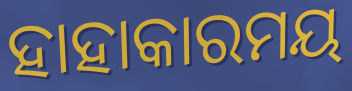
ହାହାକାରମୟ